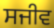
ਸਜੀਵ